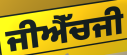
ਜੀਐੱਚਜੀ